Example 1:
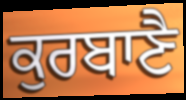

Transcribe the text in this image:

ਕੁਰਬਾਣੈ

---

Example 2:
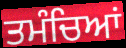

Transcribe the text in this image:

ਤਮੰਚਿਆਂ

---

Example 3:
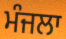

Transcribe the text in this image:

ਮੰਜਲਾ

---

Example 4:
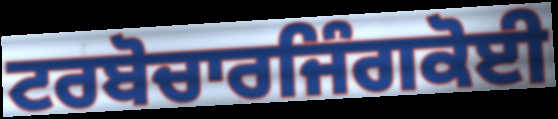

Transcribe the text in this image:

ਟਰਬੋਚਾਰਜਿੰਗਕੋਈ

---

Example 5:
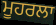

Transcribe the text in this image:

ਮੂਹਰਲਾ